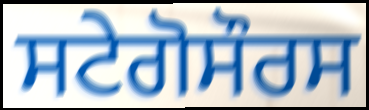
ਸਟੇਗੋਸੌਰਸ